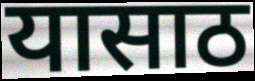
यासाठ